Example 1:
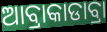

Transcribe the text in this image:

ଆବ୍ରାକାଡାବ୍ରା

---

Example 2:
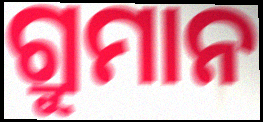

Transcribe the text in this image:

ଗ୍ରୁମାନ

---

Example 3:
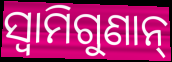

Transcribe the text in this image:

ସ୍ୱାମିଗୁଣାନ୍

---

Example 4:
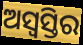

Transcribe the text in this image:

ଅସ୍ୱସ୍ତିର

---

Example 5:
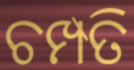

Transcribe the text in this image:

ଚମ୍ପତି